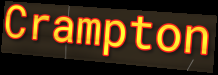
Crampton